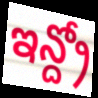
ఇన్ద్రో